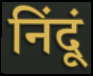
निंदूं